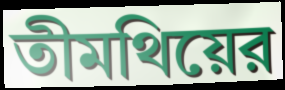
তীমথিয়ের